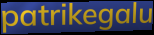
patrikegalu